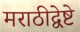
मराठीद्वेष्टे